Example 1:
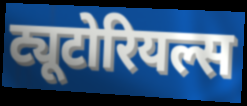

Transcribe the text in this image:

ट्यूटोरियल्स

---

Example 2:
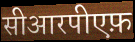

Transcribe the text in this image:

सीआरपीएफ़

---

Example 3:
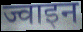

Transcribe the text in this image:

ज्‍वाइन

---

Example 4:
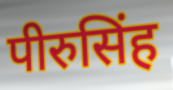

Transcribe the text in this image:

पीरुसिंह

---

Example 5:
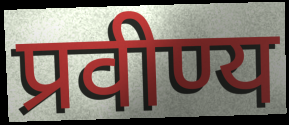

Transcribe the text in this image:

प्रवीण्य